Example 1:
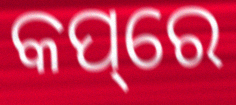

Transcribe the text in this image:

କପ୍‌ରେ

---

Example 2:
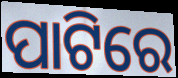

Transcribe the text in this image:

ପାଟିରେ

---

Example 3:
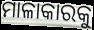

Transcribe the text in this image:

ମାଳାକାରକୁ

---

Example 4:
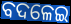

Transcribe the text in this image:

ବଦଳେଇ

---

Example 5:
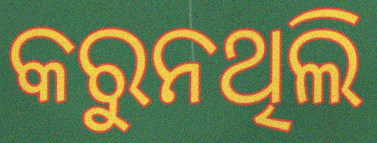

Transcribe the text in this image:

କରୁନଥିଲି